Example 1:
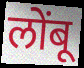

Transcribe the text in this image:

लोंबू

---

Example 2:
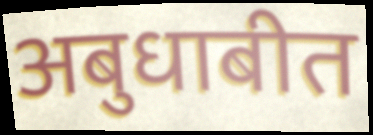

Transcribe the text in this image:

अबुधाबीत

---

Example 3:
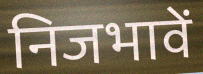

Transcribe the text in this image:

निजभावें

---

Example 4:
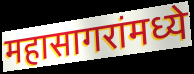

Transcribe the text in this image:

महासागरांमध्ये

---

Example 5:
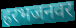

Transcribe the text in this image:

हरभजनवर